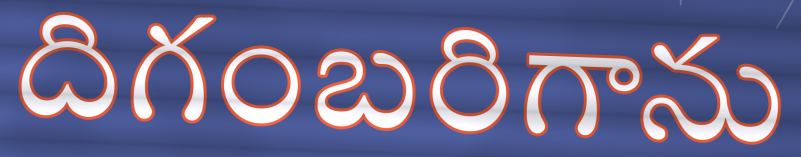
దిగంబరిగాను